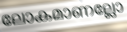
ലോകമാണല്ലോ